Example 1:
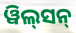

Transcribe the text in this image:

ୱିଲ୍‌ସନ୍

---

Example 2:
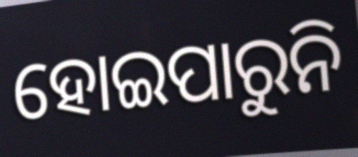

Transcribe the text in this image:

ହୋଇପାରୁନି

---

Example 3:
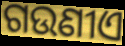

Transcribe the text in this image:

ଗଉଣୀଏ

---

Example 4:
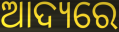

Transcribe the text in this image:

ଆଦ୍ୟରେ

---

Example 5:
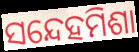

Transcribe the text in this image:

ସନ୍ଦେହମିଶା